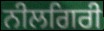
ਨੀਲਗਿਰੀ